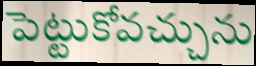
పెట్టుకోవచ్చును